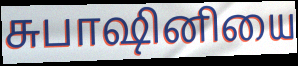
சுபாஷினியை